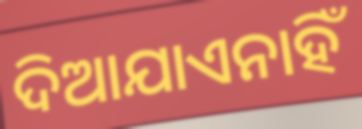
ଦିଆଯାଏନାହିଁ